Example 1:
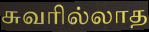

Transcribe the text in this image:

சுவரில்லாத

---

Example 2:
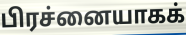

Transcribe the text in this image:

பிரச்னையாகக்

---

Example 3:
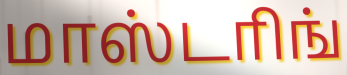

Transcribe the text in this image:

மாஸ்டரிங்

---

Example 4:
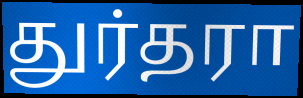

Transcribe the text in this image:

துர்தரா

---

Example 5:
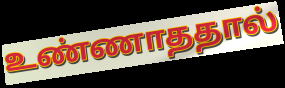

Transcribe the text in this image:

உண்ணாததால்